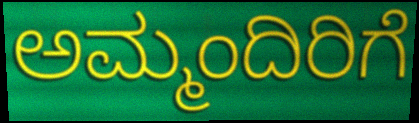
ಅಮ್ಮಂದಿರಿಗೆ